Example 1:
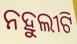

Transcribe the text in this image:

ନହୁଲୀଟି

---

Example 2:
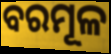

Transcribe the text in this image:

ବରମୂଳ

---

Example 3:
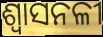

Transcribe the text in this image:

ଶ୍ଵାସନଳୀ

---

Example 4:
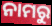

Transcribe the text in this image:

ନାମରୁ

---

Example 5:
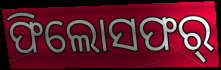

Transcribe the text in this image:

ଫିଲୋସଫର୍